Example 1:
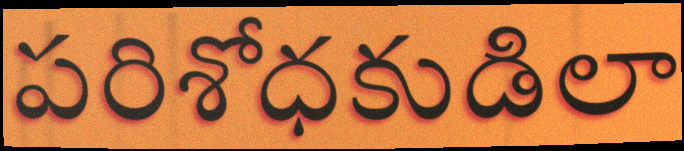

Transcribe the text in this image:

పరిశోధకుడిలా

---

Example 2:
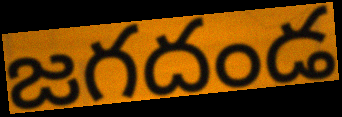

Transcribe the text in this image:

జగదండ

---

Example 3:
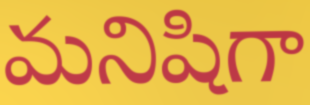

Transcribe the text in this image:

మనిషిగా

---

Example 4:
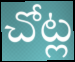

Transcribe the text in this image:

చోట్ల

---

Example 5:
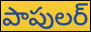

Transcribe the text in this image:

పాపులర్